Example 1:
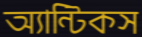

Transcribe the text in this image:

অ্যান্টিকস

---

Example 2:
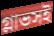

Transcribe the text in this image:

গ্লাভসই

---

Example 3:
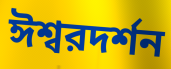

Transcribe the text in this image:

ঈশ্বরদর্শন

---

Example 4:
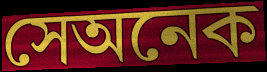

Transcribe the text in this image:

সেঅনেক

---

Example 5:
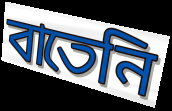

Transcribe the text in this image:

বাতেনি